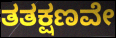
ತತಕ್ಷಣವೇ